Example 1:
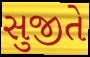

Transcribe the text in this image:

સુજીતે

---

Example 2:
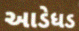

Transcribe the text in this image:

આડેધડ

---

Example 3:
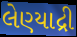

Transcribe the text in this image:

લેણ્યાદ્રી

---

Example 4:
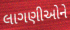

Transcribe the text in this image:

લાગણીઓને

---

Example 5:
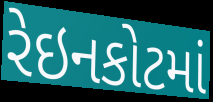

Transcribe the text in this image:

રેઇનકોટમાં